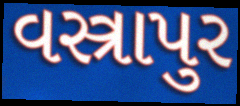
વસ્ત્રાપુર